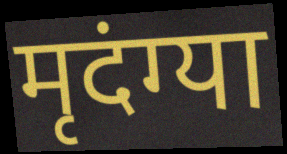
मृदंग्या